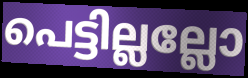
പെട്ടില്ലല്ലോ